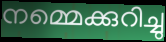
നമ്മെക്കുറിച്ചു